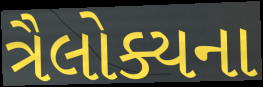
ત્રૈલોક્યના